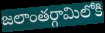
జలాంతర్గామిలోకి